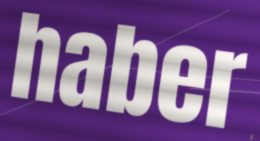
haber